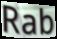
Rab